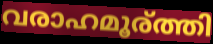
വരാഹമൂര്ത്തി